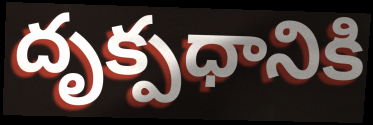
దృక్పధానికి